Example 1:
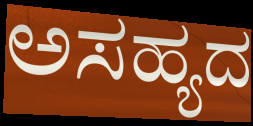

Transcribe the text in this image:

ಅಸಹ್ಯದ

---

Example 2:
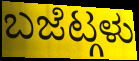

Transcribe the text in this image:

ಬಜೆಟ್ಗಳು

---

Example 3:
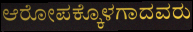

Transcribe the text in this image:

ಆರೋಪಕ್ಕೊಳಗಾದವರು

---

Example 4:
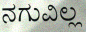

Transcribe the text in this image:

ನಗುವಿಲ್ಲ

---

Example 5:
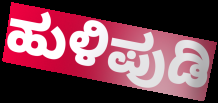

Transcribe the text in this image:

ಹುಳಿಪುಡಿ